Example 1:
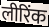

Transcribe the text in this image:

लीरिंक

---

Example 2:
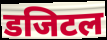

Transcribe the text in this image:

डजिटल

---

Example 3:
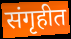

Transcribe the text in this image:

संगृहीत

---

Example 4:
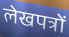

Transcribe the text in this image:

लेखपत्रों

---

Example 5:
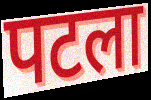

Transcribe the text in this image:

पटला